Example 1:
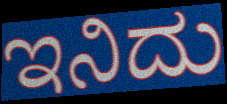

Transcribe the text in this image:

ಇನಿದು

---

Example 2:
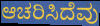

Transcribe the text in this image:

ಆಚರಿಸಿದೆವು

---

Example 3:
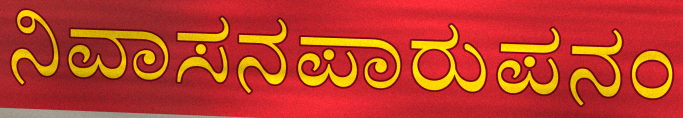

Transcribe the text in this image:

ನಿವಾಸನಪಾರುಪನಂ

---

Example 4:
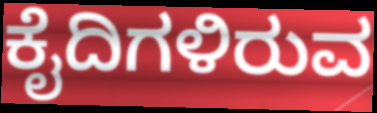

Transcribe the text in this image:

ಕೈದಿಗಳಿರುವ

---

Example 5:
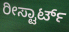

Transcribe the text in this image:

ರೀಸ್ಟಾರ್ಟ್